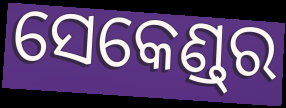
ସେକେଣ୍ଡ୍‌ର